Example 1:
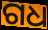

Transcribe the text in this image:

ଗଧ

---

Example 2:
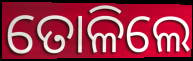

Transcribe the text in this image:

ତୋଳିଲେ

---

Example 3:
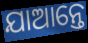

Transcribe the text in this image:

ଯାଆନ୍ତେ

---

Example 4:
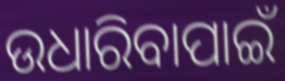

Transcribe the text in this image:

ଉଧାରିବାପାଇଁ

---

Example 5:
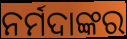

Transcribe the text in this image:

ନର୍ମଦାଙ୍କର